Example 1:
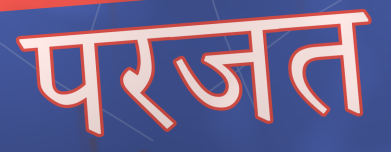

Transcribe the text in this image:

परजत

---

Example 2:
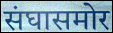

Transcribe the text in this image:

संघासमोर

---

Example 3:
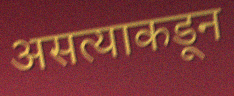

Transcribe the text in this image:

असत्याकडून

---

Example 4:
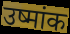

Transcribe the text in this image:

उष्मांक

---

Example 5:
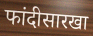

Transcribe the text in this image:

फांदीसारखा